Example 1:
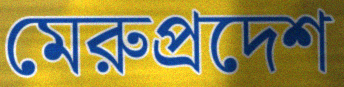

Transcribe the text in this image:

মেরুপ্রদেশ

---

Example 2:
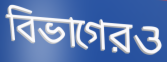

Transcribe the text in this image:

বিভাগেরও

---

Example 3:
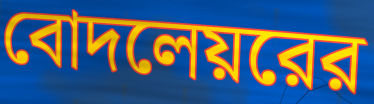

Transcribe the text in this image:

বোদলেয়রের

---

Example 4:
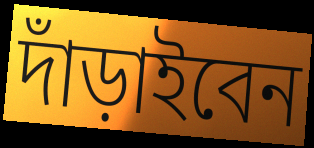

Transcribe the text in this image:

দাঁড়াইবেন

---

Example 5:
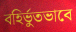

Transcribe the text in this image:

বহির্ভুতভাবে